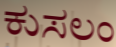
ಕುಸಲಂ